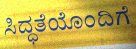
ಸಿದ್ಧತೆಯೊಂದಿಗೆ